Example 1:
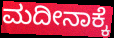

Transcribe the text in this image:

ಮದೀನಾಕ್ಕೆ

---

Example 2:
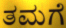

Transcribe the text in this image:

ತಮಗೆ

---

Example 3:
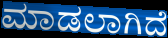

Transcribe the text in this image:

ಮಾಡಲಾಗಿದೆ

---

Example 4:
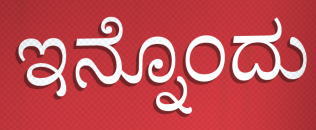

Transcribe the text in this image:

ಇನ್ನೊಂದು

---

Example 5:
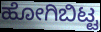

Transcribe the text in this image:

ಹೋಗಿಬಿಟ್ಟ